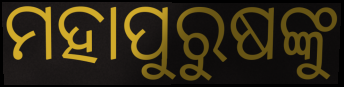
ମହାପୁରୁଷଙ୍କୁ